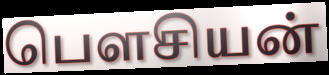
பௌசியன்